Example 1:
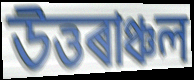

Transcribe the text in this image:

উত্তৰাঞ্চল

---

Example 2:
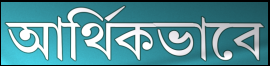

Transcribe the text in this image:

আৰ্থিকভাবে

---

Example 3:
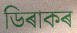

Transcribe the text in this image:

ডিৰাকৰ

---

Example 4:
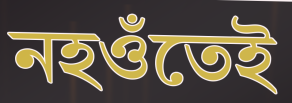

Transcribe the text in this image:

নহওঁতেই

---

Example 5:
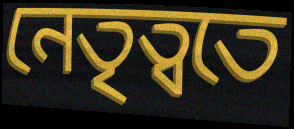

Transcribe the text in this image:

নেতৃত্বতে